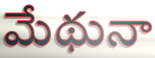
మేథునా